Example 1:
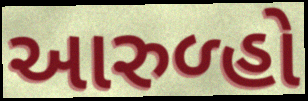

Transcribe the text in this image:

આરુળ્હો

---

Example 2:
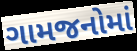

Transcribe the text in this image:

ગામજનોમાં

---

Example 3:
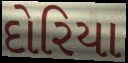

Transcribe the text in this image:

દોરિયા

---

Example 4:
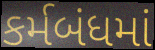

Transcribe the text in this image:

કર્મબંધમાં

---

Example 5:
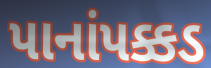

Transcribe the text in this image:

પાનાંપક્કડ